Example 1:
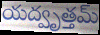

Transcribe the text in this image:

యద్వృత్తమ్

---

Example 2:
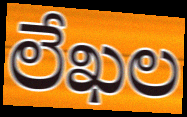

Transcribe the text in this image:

లేఖల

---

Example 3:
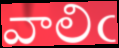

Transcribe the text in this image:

వాలిఁ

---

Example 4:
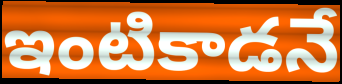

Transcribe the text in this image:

ఇంటికాడనే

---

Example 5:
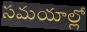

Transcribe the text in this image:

సమయాల్లో